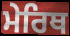
ਮੇਰਿਥ